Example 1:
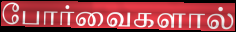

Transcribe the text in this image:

போர்வைகளால்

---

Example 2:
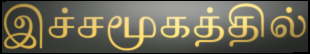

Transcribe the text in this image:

இச்சமூகத்தில்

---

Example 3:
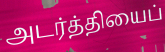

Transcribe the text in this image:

அடர்த்தியைப்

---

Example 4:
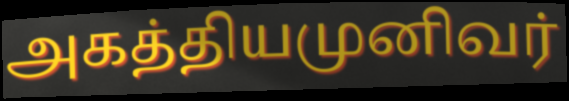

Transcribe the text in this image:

அகத்தியமுனிவர்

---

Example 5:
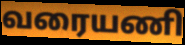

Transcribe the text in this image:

வரையணி